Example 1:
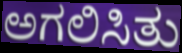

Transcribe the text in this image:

ಅಗಲಿಸಿತು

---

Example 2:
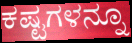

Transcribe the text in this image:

ಕಷ್ಟಗಳನ್ನೂ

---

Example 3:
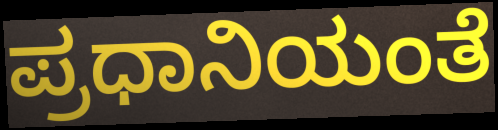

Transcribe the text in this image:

ಪ್ರಧಾನಿಯಂತೆ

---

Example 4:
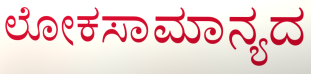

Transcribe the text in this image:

ಲೋಕಸಾಮಾನ್ಯದ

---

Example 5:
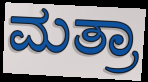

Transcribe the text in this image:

ಮತ್ರಾ